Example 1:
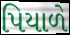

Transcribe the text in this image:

પિયાળે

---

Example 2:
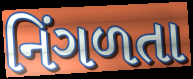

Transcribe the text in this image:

નિંગળતા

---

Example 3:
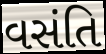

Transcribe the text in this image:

વસંતિ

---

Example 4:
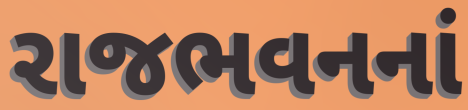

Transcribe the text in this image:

રાજભવનનાં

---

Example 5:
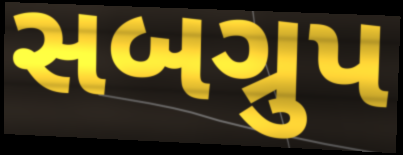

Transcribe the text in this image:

સબગ્રુપ